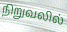
நிறுவலில்